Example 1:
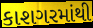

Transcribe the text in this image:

કાશગરમાંથી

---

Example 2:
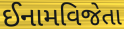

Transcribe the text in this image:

ઈનામવિજેતા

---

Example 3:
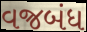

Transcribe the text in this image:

વજ્રબંધ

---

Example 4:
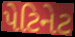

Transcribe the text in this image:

પેટિનેટ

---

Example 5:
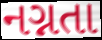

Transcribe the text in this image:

નગ્નતા